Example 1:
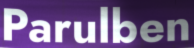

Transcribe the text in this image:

Parulben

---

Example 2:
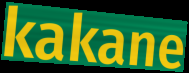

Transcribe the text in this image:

kakane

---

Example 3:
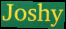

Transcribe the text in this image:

Joshy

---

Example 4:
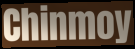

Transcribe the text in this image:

Chinmoy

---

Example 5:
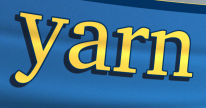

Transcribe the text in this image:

yarn